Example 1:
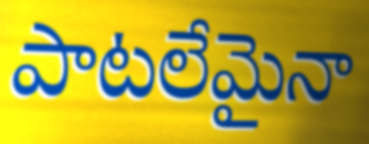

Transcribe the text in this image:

పాటలేమైనా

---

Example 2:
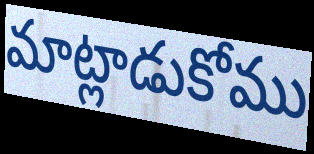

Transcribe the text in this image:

మాట్లాడుకోము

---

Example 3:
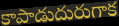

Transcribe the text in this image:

కాపాడుదురుగాక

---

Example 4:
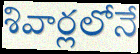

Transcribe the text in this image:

శివార్లలోనే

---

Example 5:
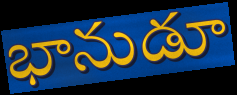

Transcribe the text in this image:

భానుడూ